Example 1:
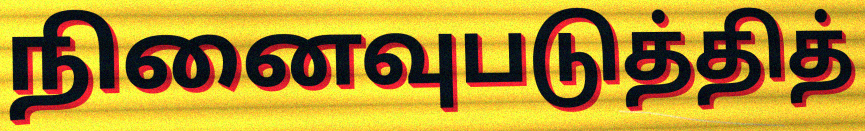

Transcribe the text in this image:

நினைவுபடுத்தித்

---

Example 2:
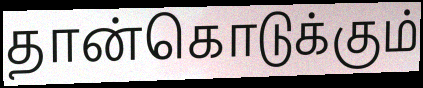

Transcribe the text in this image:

தான்கொடுக்கும்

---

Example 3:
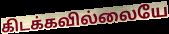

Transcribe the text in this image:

கிடக்கவில்லையே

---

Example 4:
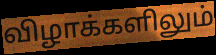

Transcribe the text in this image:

விழாக்களிலும்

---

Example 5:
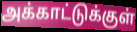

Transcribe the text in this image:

அக்காட்டுக்குள்